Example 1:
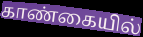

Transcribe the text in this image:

காண்கையில்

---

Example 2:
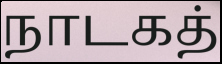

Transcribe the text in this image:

நாடகத்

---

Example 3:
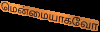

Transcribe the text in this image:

மென்மையாகவோ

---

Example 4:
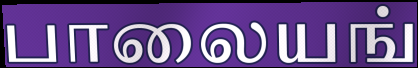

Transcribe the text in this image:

பாலையங்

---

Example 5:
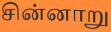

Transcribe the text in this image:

சின்னாறு